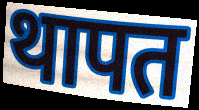
थापत